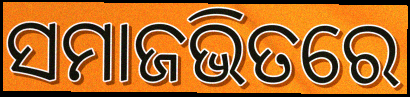
ସମାଜଭିତରେ